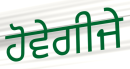
ਹੋਵੇਗੀਜੇ